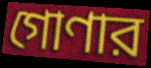
গোণার